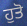
ਹੁਤੋ